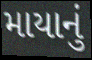
માયાનું